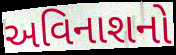
અવિનાશનો